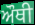
ਔਥੀ